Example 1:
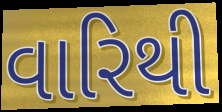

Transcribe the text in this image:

વારિથી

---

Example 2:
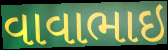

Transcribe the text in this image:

વાવાભાઇ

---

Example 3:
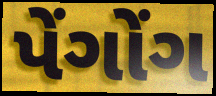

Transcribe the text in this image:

પેંગોંગ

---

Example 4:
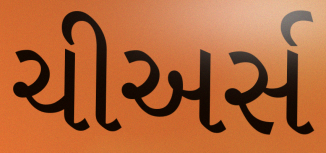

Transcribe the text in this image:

ચીઅર્સ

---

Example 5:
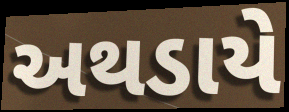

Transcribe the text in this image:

અથડાયે